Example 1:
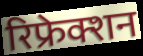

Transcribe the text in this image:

रिफ्रेक्शन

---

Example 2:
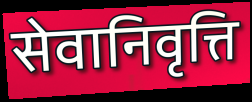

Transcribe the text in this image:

सेवानिवृत्ति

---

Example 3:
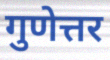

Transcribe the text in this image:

गुणेत्तर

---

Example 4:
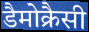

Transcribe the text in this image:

डैमोक्रैसी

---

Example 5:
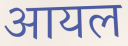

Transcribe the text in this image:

आयल